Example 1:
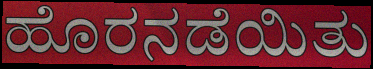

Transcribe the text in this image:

ಹೊರನಡೆಯಿತು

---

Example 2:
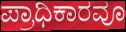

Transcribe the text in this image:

ಪ್ರಾಧಿಕಾರವೂ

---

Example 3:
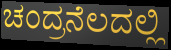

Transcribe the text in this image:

ಚಂದ್ರನೆಲದಲ್ಲಿ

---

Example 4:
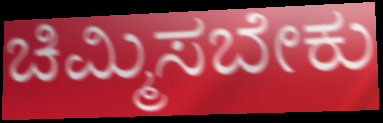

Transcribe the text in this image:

ಚಿಮ್ಮಿಸಬೇಕು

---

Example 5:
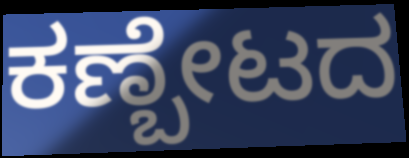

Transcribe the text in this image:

ಕಣ್ಬೇಟದ